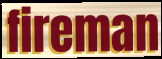
fireman